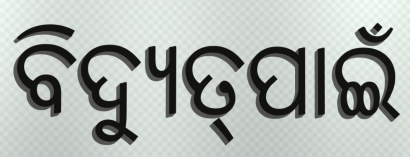
ବିଦ୍ୟୁତ୍‌ପାଇଁ